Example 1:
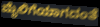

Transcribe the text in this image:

ಮೈಲಿಗೆಯಾಗದಂತೆ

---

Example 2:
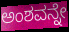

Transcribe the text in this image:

ಅಂಶವನ್ನೇ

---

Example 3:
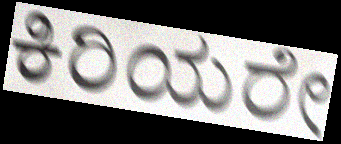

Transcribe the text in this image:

ಕಿರಿಯರೇ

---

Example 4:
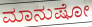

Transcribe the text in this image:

ಮಾನುಷೋ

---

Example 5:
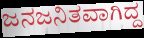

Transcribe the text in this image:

ಜನಜನಿತವಾಗಿದ್ದ